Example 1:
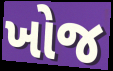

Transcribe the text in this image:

ખોજ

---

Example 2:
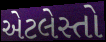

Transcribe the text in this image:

એટલેસ્તો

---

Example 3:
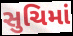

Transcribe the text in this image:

સુચિમાં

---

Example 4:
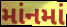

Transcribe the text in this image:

માંનમાં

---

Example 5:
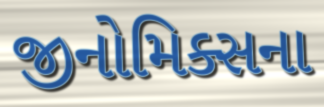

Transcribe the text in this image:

જીનોમિક્સના